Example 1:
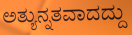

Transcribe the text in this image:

ಅತ್ಯುನ್ನತವಾದದ್ದು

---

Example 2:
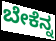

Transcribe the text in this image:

ಬೇಕೆನ್ನ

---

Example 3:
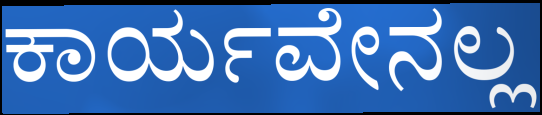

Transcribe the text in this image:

ಕಾರ್ಯವೇನಲ್ಲ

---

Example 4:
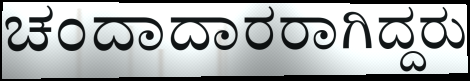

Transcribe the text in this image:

ಚಂದಾದಾರರಾಗಿದ್ದರು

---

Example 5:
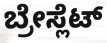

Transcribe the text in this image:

ಬ್ರೇಸ್ಲೆಟ್